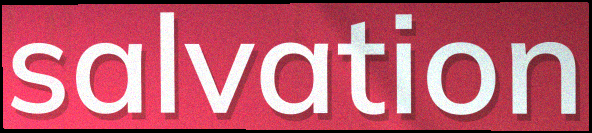
salvation